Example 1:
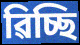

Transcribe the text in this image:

ৱিচ্ছি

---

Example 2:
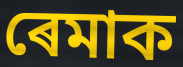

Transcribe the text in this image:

ৰেমাক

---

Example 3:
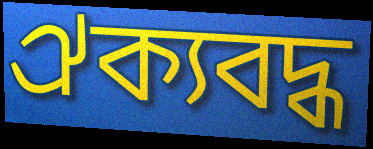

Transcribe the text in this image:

ঐক্যবদ্ধ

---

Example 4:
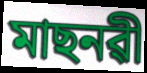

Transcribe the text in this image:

মাছনৱী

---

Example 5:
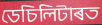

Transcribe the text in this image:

ডেচিলিটাৰত